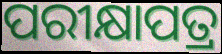
ପରୀକ୍ଷାପତ୍ର